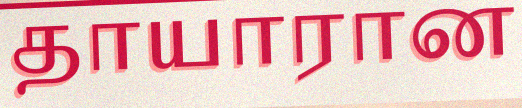
தாயாரான